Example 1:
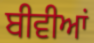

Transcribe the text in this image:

ਬੀਵੀਆਂ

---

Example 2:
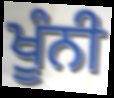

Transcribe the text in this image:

ਖੂੰਨੀ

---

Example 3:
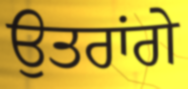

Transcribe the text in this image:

ਉਤਰਾਂਗੇ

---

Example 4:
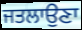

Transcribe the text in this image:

ਜਤਲਾਉਣਾ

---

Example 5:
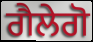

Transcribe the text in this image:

ਗੈਲੇਗੋ